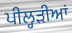
ਪੀਲ੍ਹੜੀਆਂ